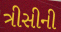
ત્રીસીની